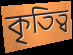
কৃতিত্ব